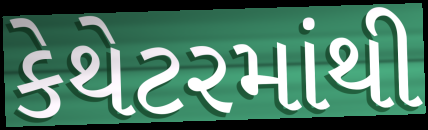
કેથેટરમાંથી